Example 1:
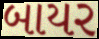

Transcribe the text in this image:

બાયર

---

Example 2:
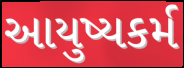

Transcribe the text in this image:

આયુષ્યકર્મ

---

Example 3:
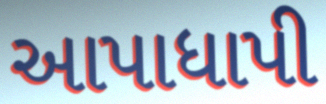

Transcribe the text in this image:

આપાધાપી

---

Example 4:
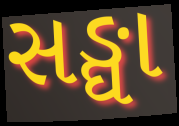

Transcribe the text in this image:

સઙ્ઘા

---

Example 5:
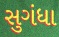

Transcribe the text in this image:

સુગંધા